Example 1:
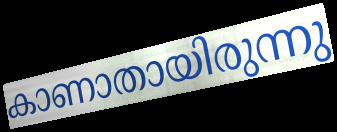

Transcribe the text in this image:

കാണാതായിരുന്നു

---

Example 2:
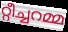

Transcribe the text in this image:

റ്റീച്ചറമ്മ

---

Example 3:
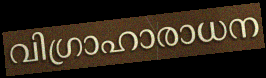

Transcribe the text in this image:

വിഗ്രാഹാരാധന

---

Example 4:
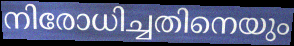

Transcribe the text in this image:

നിരോധിച്ചതിനെയും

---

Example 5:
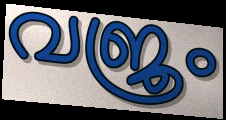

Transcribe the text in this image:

വജ്രം